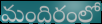
మందిరంలో